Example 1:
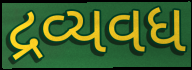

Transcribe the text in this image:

દ્રવ્યવધ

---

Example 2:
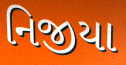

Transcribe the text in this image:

નિજીયા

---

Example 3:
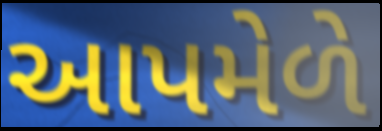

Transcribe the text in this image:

આપમેળે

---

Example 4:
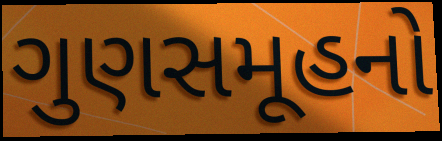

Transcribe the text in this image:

ગુણસમૂહનો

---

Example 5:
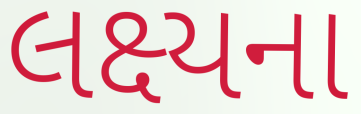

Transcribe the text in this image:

લક્ષ્યના